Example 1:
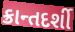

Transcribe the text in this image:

ક્રાન્તદર્શી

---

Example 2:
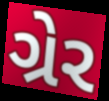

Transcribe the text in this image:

ગ્રેર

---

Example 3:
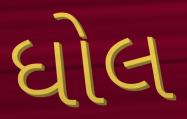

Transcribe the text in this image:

ધોલ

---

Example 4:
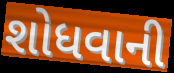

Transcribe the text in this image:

શોધવાની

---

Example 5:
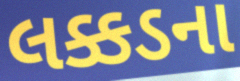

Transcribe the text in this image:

લક્કડના